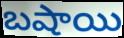
బషాయి